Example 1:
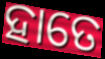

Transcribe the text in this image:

ହାତେ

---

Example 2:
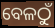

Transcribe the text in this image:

ବେଳଠୁଁ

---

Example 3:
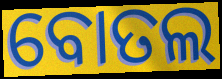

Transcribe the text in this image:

ବୋତଲ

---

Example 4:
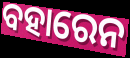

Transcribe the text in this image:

ବହାରେନ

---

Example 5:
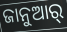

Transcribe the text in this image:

ଜାନୁଆର୍